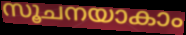
സൂചനയാകാം